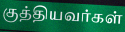
குத்தியவர்கள்